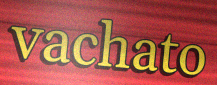
vachato